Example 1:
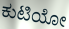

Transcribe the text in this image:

ಕುಟಿಯೋ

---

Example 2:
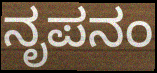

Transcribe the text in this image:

ನೃಪನಂ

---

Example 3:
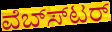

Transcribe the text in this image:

ವೆಬ್ಸ್‍ಟರ್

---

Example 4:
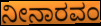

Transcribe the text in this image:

ನೀನಾರವಂ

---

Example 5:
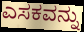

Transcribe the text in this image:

ಎಸಕವನ್ನು